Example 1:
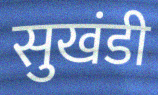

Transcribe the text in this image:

सुखंडी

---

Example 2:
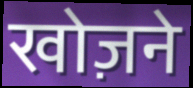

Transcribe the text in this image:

खोज़ने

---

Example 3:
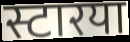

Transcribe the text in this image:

स्टारया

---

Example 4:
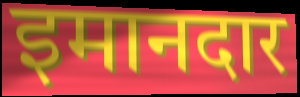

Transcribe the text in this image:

इमानदार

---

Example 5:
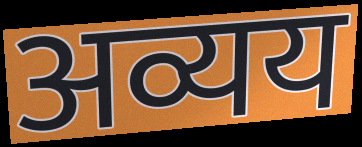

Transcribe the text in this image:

अव्यय